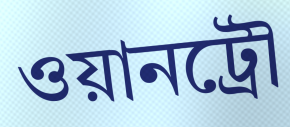
ওয়ানট্রৌ